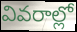
వివరాల్లో